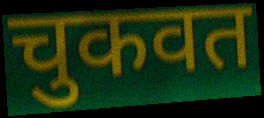
चुकवत